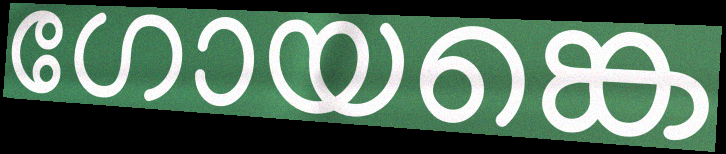
ഗോയങ്കെ